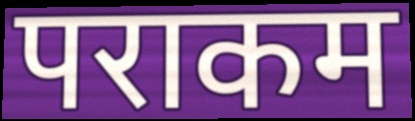
पराकम